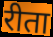
रीता